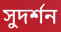
সুদৰ্শন